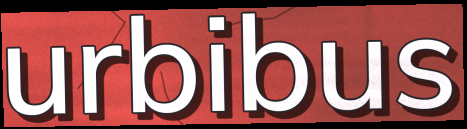
urbibus